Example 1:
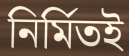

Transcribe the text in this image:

নির্মিতই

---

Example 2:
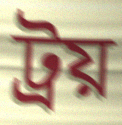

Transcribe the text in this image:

ট্রয়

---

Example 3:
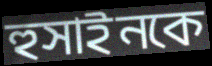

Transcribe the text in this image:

হুসাইনকে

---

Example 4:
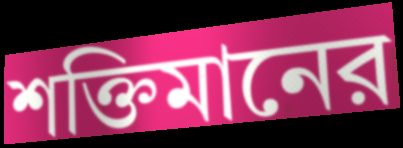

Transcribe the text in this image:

শক্তিমানের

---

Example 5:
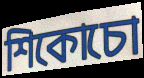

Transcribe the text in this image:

শিকোচো